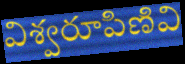
విశ్వరూపిణివి